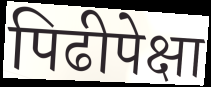
पिढीपेक्षा